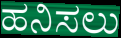
ಹನಿಸಲು